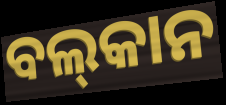
ବଲ୍‌କାନ